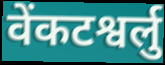
वेंकटश्वर्लु